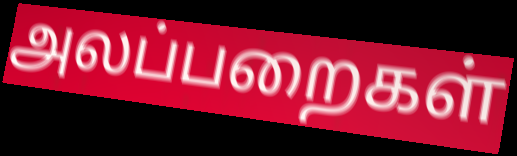
அலப்பறைகள்